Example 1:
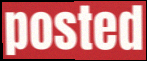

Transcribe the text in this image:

posted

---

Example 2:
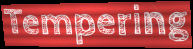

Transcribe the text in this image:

Tempering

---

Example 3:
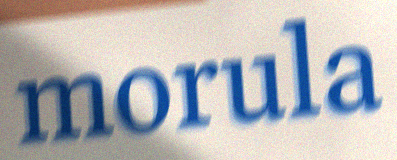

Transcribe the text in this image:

morula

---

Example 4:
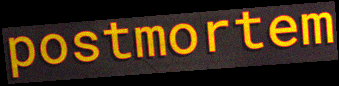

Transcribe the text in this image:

postmortem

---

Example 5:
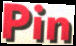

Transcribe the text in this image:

Pin